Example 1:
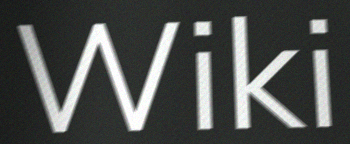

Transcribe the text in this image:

Wiki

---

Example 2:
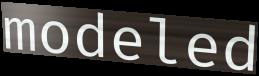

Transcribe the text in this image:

modeled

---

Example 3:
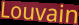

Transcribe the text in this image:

Louvain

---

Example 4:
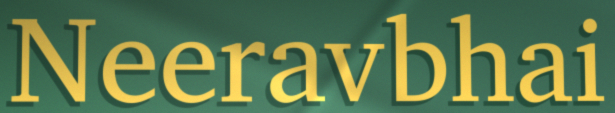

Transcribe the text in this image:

Neeravbhai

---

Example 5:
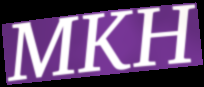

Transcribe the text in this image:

MKH